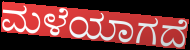
ಮಳೆಯಾಗದೆ